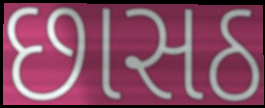
છાસઠ